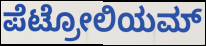
ಪೆಟ್ರೋಲಿಯಮ್